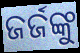
ଜର୍ଜଙ୍କୁ